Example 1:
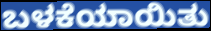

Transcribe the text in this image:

ಬಳಕೆಯಾಯಿತು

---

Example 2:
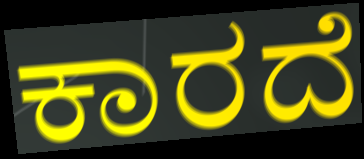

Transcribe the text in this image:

ಕಾರದೆ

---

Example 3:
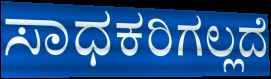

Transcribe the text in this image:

ಸಾಧಕರಿಗಲ್ಲದೆ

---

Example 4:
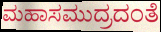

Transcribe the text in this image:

ಮಹಾಸಮುದ್ರದಂತೆ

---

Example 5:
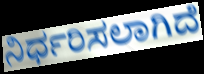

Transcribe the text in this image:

ನಿರ್ಧರಿಸಲಾಗಿದೆ